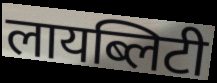
लायब्लिटी